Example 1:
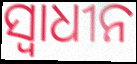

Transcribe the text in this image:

ସ୍ବାଧୀନ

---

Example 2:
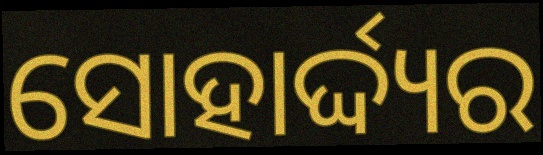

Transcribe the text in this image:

ସୋହାର୍ଦ୍ଦ୍ୟର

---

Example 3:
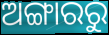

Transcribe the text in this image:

ଅଙ୍ଗାରରୁ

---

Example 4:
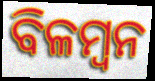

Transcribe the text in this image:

ବିଳମ୍ବନ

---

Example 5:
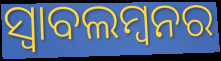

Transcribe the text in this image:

ସ୍ବାବଲମ୍ବନର